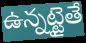
ఉన్నట్టైతే